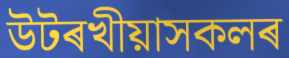
উটৰখীয়াসকলৰ